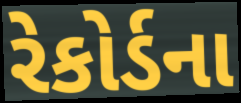
રેકોર્ડના